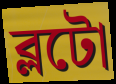
ব্লটো